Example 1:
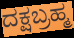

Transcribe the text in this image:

ದಕ್ಷಬ್ರಹ್ಮ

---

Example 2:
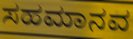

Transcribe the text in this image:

ಸಹಮಾನವ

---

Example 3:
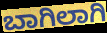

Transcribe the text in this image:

ಬಾಗಿಲಾಗಿ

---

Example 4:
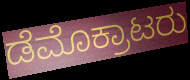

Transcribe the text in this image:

ಡೆಮೊಕ್ರಾಟರು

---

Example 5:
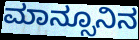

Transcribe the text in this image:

ಮಾನ್ಸೂನಿನ